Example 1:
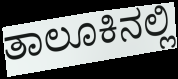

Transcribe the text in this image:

ತಾಲೂಕಿನಲ್ಲಿ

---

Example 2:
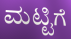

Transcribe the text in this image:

ಮಟ್ಟಿಗೆ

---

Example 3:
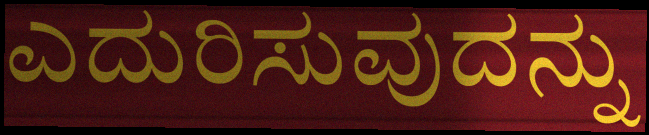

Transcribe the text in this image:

ಎದುರಿಸುವುದನ್ನು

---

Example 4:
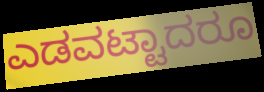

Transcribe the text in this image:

ಎಡವಟ್ಟಾದರೂ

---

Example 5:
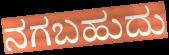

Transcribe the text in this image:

ನಗಬಹುದು